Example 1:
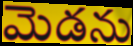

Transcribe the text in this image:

మెడను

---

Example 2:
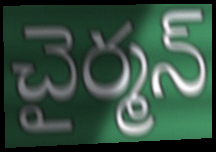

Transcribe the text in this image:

చైర్మన్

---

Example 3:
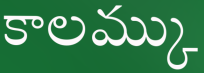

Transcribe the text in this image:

కాలమ్కు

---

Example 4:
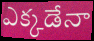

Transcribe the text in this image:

ఎక్కడేనా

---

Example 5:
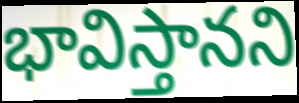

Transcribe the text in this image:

భావిస్తానని